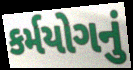
કર્મયોગનું